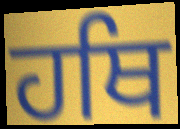
ਹਥਿ